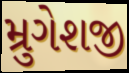
મ્રુગેશજી